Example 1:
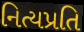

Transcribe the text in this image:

નિત્યપ્રતિ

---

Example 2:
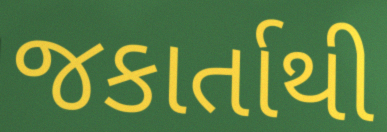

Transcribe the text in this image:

જકાર્તાથી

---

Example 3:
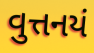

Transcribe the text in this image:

વુત્તનયં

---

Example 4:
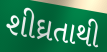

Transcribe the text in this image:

શીઘ્રતાથી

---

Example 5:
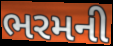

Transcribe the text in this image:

ભરમની